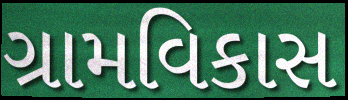
ગ્રામવિકાસ